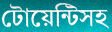
টোয়েন্টিসহ